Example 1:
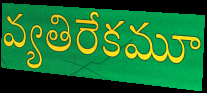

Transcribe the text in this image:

వ్యతిరేకమూ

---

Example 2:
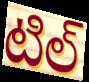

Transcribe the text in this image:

టిల్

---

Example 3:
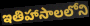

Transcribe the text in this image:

ఇతిహాసాలలోని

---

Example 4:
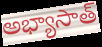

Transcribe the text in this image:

అభ్యాసాత్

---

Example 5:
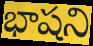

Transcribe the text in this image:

భాషని